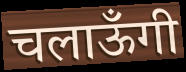
चलाऊँगी